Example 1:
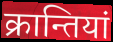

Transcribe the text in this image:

क्रान्तियां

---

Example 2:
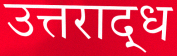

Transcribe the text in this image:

उत्तराद्ध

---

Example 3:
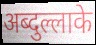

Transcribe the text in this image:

अब्दुल्लाके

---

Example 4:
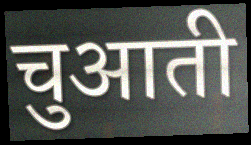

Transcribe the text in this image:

चुआती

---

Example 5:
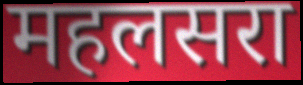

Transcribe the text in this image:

महलसरा